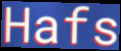
Hafs